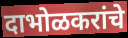
दाभोळकरांचे